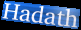
Hadath